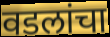
वडलांचा